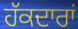
ਹੱਕਦਾਰਾਂ